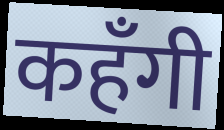
कहँगी